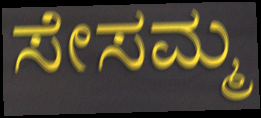
ಸೇಸಮ್ಮ